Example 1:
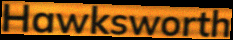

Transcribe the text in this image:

Hawksworth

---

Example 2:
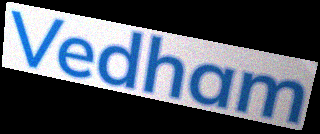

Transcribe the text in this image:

Vedham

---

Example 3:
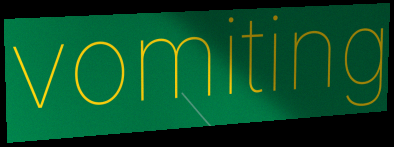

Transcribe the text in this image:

vomiting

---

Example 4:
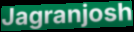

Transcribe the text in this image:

Jagranjosh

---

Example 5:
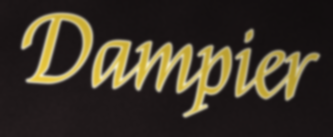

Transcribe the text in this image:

Dampier